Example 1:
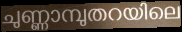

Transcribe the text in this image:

ചുണ്ണാമ്പുതറയിലെ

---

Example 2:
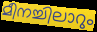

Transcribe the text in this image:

മീനച്ചിലാറും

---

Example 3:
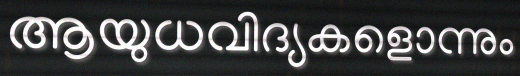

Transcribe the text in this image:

ആയുധവിദ്യകളൊന്നും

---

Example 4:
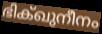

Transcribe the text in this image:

ഭിക്ഖുനീനം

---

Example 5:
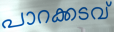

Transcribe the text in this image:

പാറക്കടവ്